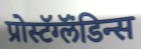
प्रोस्टॅग्लॅंडिन्स